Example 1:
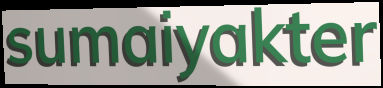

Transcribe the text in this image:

sumaiyakter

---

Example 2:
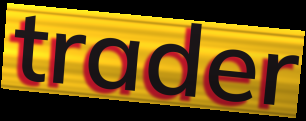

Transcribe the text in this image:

trader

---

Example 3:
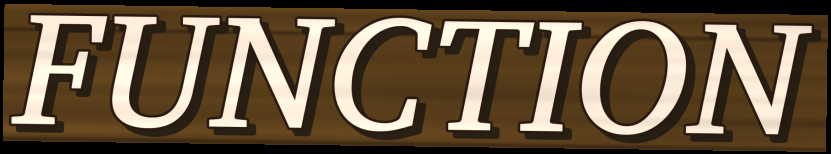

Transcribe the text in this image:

FUNCTION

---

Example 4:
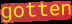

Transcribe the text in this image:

gotten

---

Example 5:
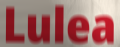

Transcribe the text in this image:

Lulea